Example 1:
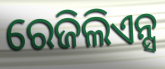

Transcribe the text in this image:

ରେଜିଲିଏନ୍ସ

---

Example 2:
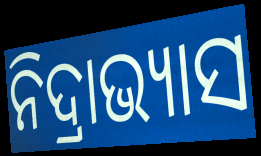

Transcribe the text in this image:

ନିଦ୍ରାଭ୍ୟାସ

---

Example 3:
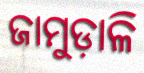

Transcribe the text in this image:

ଜାମୁଡ଼ାଳି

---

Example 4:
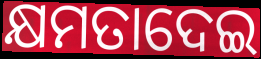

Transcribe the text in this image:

କ୍ଷମତାଦେଇ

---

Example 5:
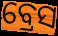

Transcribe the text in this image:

ବ୍ରେସ